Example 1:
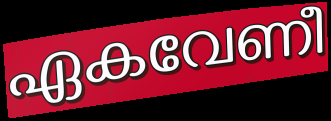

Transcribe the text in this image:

ഏകവേണീ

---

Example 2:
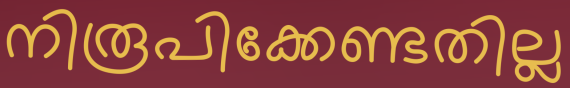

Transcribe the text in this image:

നിരൂപിക്കേണ്ടതില്ല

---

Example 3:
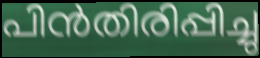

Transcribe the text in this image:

പിൻതിരിപ്പിച്ചു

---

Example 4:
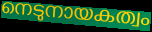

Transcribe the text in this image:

നെടുനായകത്വം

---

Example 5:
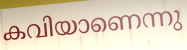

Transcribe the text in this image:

കവിയാണെന്നു